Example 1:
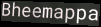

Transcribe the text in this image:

Bheemappa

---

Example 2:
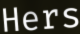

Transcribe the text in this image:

Hers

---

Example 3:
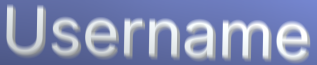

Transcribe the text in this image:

Username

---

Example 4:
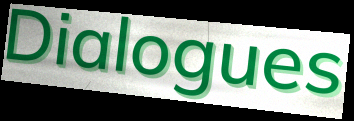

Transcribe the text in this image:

Dialogues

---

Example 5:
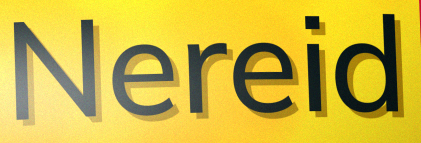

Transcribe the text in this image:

Nereid